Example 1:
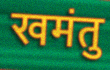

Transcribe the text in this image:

खमंतु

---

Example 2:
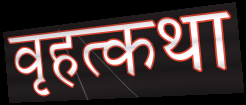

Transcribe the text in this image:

वृहत्कथा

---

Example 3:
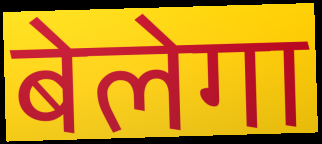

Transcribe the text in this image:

बेलेगा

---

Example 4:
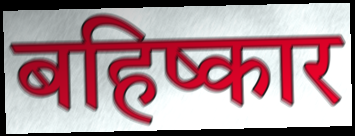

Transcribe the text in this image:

बहिष्कार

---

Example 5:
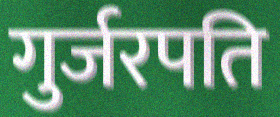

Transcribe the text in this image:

गुर्जरपति